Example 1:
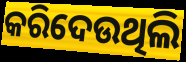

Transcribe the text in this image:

କରିଦେଉଥିଲି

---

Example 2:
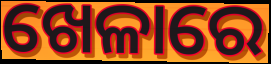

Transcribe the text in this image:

ଖେଳାରେ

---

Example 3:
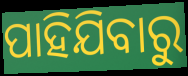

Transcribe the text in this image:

ପାହିଯିବାରୁ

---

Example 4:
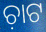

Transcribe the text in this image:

ଚ଼ାଟ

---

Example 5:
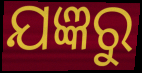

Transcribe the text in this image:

ଯଜ୍ଞରୁ